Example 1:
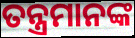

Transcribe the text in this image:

ତନ୍ତ୍ରମାନଙ୍କ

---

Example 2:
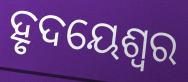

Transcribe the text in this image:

ହୃଦୟେଶ୍ୱର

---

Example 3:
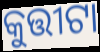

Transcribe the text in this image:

କୁତ୍ତୀଟା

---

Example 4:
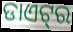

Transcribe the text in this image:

ଡାଏଟ୍‌ର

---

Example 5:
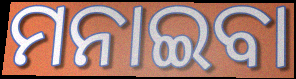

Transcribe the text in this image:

ମନାଇବା